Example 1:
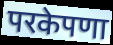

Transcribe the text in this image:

परकेपणा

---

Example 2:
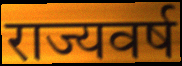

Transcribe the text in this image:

राज्यवर्ष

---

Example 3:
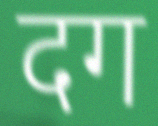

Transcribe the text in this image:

दग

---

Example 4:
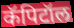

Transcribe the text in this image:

कॅपिटॉल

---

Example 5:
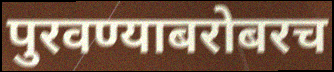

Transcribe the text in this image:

पुरवण्याबरोबरच